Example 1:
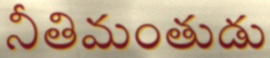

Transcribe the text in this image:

నీతిమంతుడు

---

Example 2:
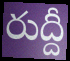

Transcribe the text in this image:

రుద్దీ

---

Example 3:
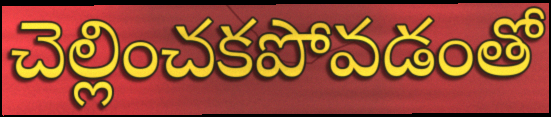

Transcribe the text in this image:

చెల్లించకపోవడంతో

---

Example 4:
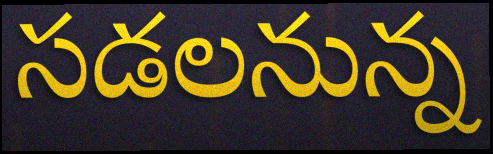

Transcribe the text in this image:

సడలనున్న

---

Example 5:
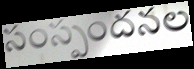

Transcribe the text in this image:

సంస్పందనల